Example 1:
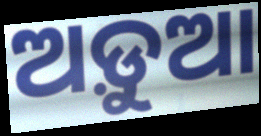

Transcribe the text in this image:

ଅଡ଼ୁଆ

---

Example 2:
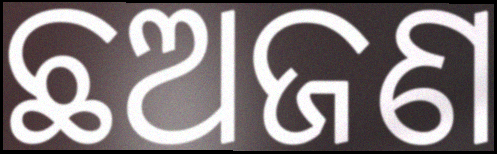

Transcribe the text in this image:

ଛଅଜଣ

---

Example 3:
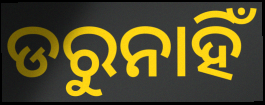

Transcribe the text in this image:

ଡରୁନାହିଁ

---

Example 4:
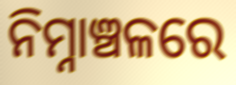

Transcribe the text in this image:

ନିମ୍ନାଞ୍ଚଳରେ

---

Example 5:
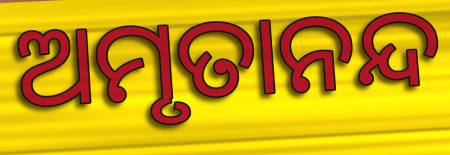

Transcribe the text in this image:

ଅମୃତାନନ୍ଦ